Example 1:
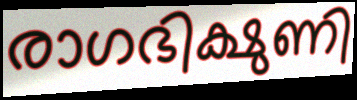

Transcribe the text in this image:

രാഗഭിക്ഷുണി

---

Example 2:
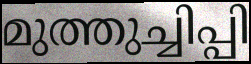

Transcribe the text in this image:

മുത്തുച്ചിപ്പി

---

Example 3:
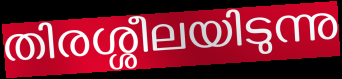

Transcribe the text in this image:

തിരശ്ശീലയിടുന്നു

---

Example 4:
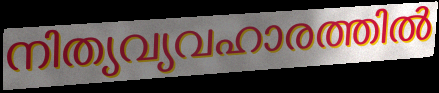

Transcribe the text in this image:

നിത്യവ്യവഹാരത്തിൽ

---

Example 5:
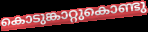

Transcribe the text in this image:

കൊടുങ്കാറ്റുകൊണ്ടു